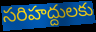
సరిహద్దులకు